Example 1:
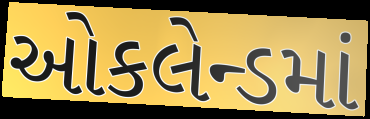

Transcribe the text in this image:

ઓકલેન્ડમાં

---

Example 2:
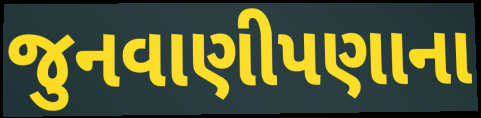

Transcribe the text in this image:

જુનવાણીપણાના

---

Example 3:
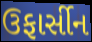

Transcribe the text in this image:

ઉફાર્સીન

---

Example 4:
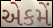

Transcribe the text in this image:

એકમેં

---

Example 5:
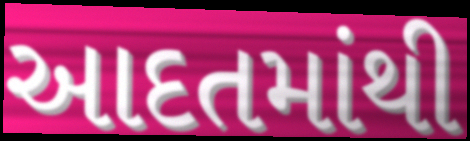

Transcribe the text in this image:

આદતમાંથી